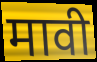
मावी